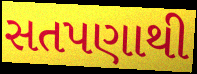
સતપણાથી